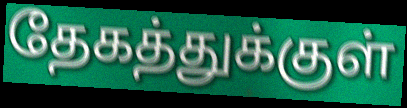
தேகத்துக்குள்